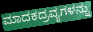
ಮಾದಕದ್ರವ್ಯಗಳನ್ನು